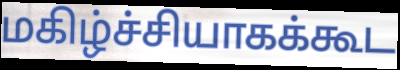
மகிழ்ச்சியாகக்கூட